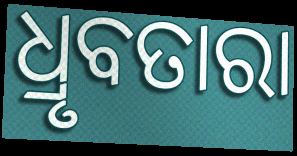
ଧ୍ରୃବତାରା